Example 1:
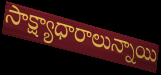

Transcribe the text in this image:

సాక్ష్యాధారాలున్నాయి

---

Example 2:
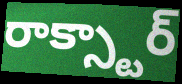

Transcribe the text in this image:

రాక్స్టార్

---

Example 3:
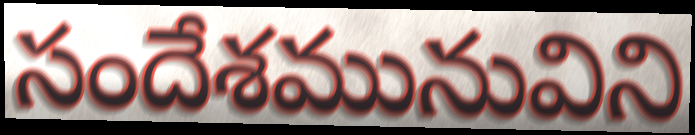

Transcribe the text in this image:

సందేశమునువిని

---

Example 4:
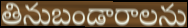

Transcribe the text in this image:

తినుబండారాలను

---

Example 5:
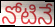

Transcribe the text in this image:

నోటినే